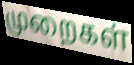
முறைகள்